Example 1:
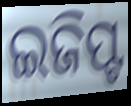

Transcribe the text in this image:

ଇଜିପ୍ଟ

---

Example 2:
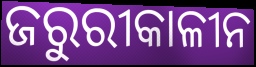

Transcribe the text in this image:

ଜରୁରୀକାଳୀନ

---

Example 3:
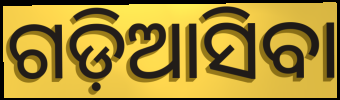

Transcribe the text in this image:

ଗଡ଼ିଆସିବା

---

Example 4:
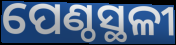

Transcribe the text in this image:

ପେଣ୍ଠସ୍ଥଳୀ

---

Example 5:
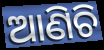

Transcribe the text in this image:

ଆଣିଚି